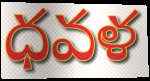
ధవళ